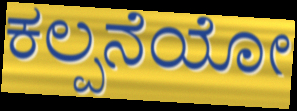
ಕಲ್ಪನೆಯೋ